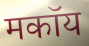
मकॉय